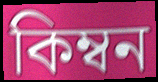
কিম্বন